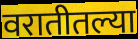
वरातीतल्या